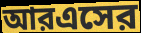
আরএসের